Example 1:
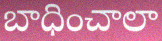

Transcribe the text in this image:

బాధించాలా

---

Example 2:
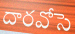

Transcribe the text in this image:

దారవోసె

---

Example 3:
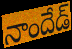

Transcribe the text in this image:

నాందేడ్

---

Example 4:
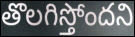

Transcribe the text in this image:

తొలగిస్తోందని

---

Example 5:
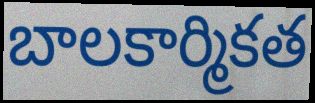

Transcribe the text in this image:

బాలకార్మికత